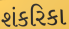
શંકરિકા